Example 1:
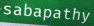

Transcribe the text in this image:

sabapathy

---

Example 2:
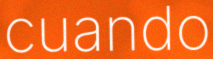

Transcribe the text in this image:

cuando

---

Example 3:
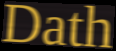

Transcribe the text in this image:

Dath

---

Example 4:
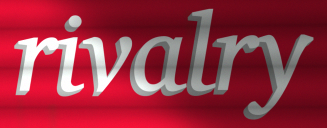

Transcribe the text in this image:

rivalry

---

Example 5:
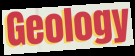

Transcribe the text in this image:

Geology